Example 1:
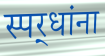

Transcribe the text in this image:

स्पर्धांना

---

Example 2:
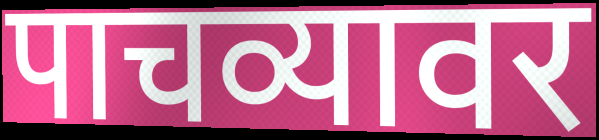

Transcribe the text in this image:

पाचव्यावर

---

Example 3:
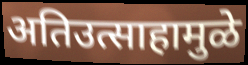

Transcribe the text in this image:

अतिउत्साहामुळे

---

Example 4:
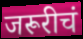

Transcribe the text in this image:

जरूरीचं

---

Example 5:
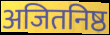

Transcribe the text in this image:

अजितनिष्ठ